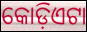
କୋଡ଼ିଏଟା